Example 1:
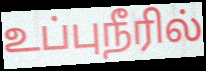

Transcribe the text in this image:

உப்புநீரில்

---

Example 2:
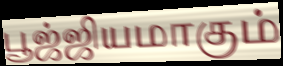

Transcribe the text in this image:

பூஜ்ஜியமாகும்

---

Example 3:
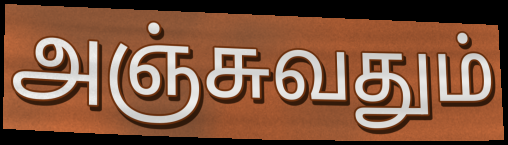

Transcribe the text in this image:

அஞ்சுவதும்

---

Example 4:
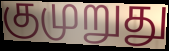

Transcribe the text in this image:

குமுறுது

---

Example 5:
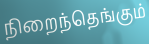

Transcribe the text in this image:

நிறைந்தெங்கும்